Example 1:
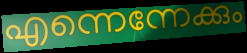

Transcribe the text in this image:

എന്നെന്നേക്കും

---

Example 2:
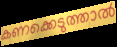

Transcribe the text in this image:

കണക്കെടുത്താൽ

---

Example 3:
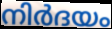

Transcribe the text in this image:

നിർദയം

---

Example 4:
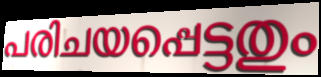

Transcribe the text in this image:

പരിചയപ്പെട്ടതും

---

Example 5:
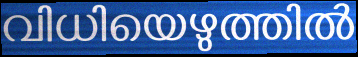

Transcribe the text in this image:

വിധിയെഴുത്തിൽ